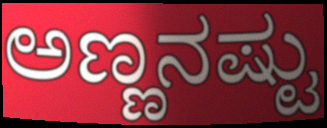
ಅಣ್ಣನಷ್ಟು